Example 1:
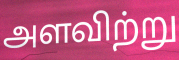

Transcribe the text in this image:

அளவிற்று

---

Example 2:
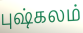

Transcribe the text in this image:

புஷ்கலம்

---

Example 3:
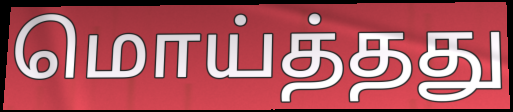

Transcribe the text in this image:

மொய்த்தது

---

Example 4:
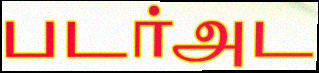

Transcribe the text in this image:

படர்அட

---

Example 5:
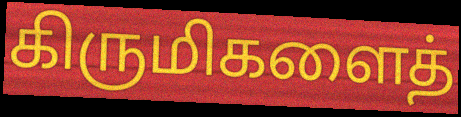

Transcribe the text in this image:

கிருமிகளைத்